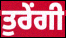
ਤੁਰੇਂਗੀ